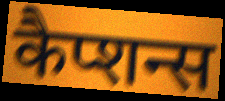
कैप्शन्स